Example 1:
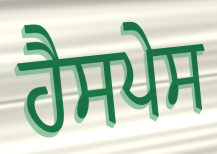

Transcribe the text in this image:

ਹੈਸਪੇਸ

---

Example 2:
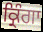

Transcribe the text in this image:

ਕ੍ਰਿੰਗਾ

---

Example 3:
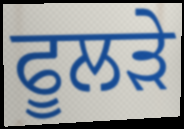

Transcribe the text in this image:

ਫੂਲੜੇ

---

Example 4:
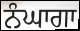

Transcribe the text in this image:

ਨੰਘਾਗਾ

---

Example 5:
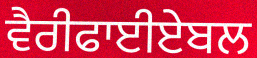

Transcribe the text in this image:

ਵੈਰੀਫਾਈਏਬਲ